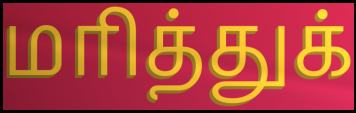
மரித்துக்